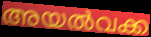
അയൽവക്ക